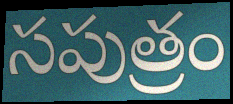
సపుత్రం